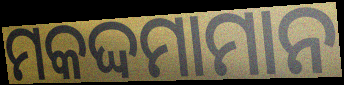
ମକଦ୍ଦମାମାନ